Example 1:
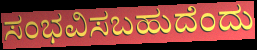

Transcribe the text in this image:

ಸಂಭವಿಸಬಹುದೆಂದು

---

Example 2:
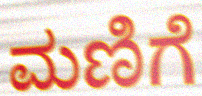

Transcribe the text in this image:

ಮಣಿಗೆ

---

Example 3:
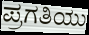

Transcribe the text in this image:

ಪ್ರಗತಿಯು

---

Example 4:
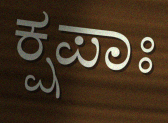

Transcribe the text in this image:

ಕ್ಷಪಾಃ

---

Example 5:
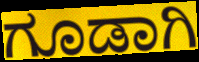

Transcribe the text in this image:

ಗೂಡಾಗಿ